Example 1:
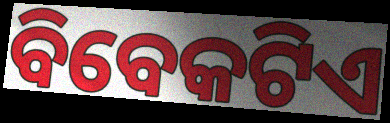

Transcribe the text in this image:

ବିବେକଟିଏ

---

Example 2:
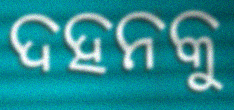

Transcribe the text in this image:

ଦହନକୁ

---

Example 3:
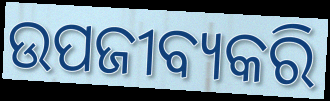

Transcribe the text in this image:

ଉପଜୀବ୍ୟକରି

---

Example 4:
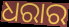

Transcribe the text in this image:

ଧରାର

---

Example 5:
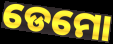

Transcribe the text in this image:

ଡେମୋ